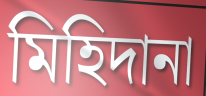
মিহিদানা